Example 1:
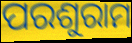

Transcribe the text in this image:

ପରଶୁରାମ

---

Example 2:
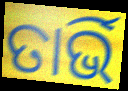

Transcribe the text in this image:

ତାର୍ଭି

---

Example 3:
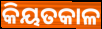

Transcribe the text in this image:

କିୟତକାଳ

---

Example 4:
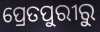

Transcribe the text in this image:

ପ୍ରେତପୁରୀରୁ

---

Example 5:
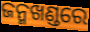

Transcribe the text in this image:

ଜନ୍ମଖଣ୍ଡରେ